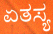
ಏತಸ್ಯ